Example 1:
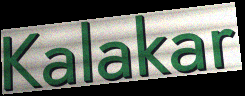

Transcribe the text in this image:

Kalakar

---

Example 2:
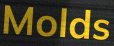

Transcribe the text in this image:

Molds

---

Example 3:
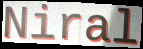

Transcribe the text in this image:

Niral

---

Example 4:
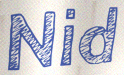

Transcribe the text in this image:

Nid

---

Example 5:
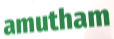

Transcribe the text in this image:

amutham